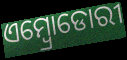
ଏମ୍ବ୍ରୋଡୋରୀ